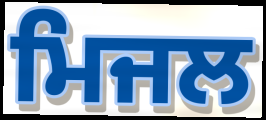
ਮਿਜਲ